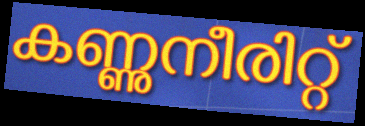
കണ്ണുനീരിറ്റ്